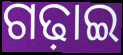
ଗଢ଼ାଇ